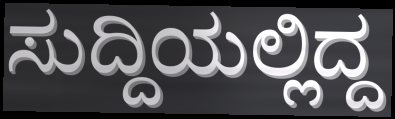
ಸುದ್ದಿಯಲ್ಲಿದ್ದ